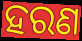
ହରଣ